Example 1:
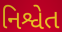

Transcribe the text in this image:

નિશ્વેત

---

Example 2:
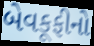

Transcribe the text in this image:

બેવકૂફીનો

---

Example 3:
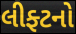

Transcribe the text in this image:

લીફ્ટનો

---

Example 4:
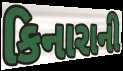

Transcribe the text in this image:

કિનારાની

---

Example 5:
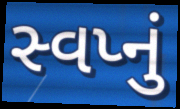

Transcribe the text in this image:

સ્વપ્નું